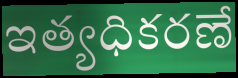
ఇత్యధికరణే